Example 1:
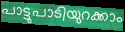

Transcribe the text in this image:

പാട്ടുപാടിയുറക്കാം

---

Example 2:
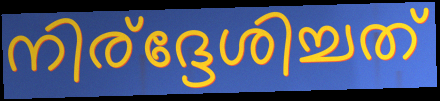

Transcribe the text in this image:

നിര്ദ്ദേശിച്ചത്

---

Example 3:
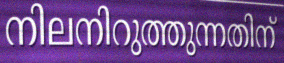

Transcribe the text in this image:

നിലനിറുത്തുന്നതിന്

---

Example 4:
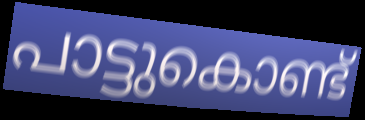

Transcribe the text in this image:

പാട്ടുകൊണ്ട്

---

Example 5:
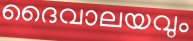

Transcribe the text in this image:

ദൈവാലയവും